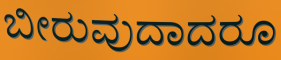
ಬೀರುವುದಾದರೂ